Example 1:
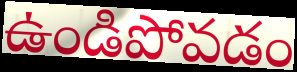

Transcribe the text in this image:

ఉండిపోవడం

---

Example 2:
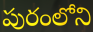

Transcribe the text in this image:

పురంలోని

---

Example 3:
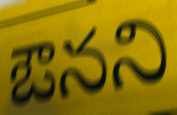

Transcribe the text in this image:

ఔనని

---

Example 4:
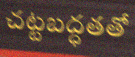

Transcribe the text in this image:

చట్టబద్ధతతో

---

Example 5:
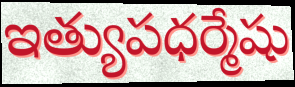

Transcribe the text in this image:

ఇత్యుపధర్మేషు